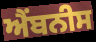
ਐਂਬਨੀਸ